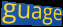
guage